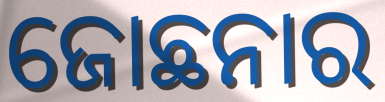
ଜୋଛନାର